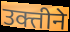
उक्तीने